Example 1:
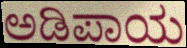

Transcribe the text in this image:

ಅಡಿಪಾಯ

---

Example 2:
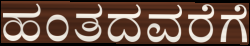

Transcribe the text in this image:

ಹಂತದವರೆಗೆ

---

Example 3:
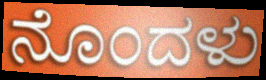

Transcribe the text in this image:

ನೊಂದಳು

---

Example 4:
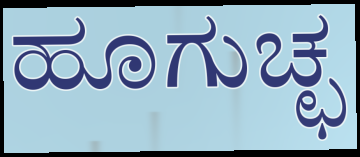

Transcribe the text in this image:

ಹೂಗುಚ್ಛ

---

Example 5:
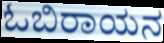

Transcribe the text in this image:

ಓಬಿರಾಯನ